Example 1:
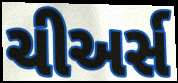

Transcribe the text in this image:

ચીઅર્સ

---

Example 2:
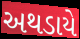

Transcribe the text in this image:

અથડાયે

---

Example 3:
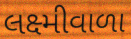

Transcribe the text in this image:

લક્ષ્મીવાળા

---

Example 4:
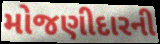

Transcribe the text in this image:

મોજણીદારની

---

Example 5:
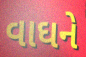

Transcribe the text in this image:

વાઘને